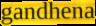
gandhena